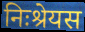
निःश्रेयस